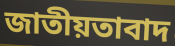
জাতীয়তাবাদ